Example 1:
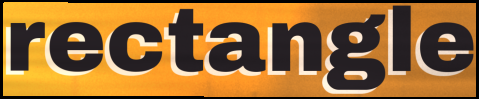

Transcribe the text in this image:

rectangle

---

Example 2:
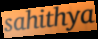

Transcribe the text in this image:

sahithya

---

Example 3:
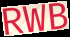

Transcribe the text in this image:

RWB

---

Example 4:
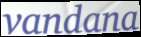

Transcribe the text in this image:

vandana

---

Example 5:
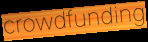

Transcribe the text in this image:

crowdfunding